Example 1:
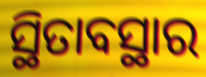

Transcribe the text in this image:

ସ୍ଥିତାବସ୍ଥାର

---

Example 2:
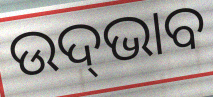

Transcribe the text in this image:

ଉଦ୍‍ଭାବ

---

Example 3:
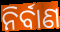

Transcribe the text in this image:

ନିର୍ବାଣ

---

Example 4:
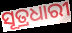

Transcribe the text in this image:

ସୂତ୍ରଧାରୀ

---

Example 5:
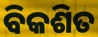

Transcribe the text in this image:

ବିକଶିତ